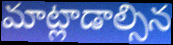
మాట్లాడాల్సిన